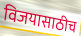
विजयासाठीच